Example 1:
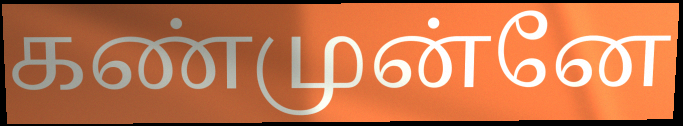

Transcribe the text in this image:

கண்முன்னே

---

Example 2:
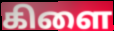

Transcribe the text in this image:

கிளை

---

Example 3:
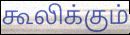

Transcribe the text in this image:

கூலிக்கும்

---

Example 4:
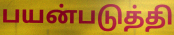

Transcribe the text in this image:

பயன்படுத்தி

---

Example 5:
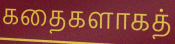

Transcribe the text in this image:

கதைகளாகத்